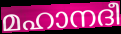
മഹാനദീ